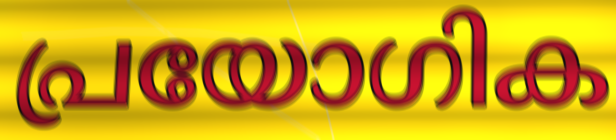
പ്രയോഗിക